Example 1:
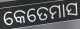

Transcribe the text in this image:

କେତେମାସ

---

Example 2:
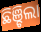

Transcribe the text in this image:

ଛିଞ୍ଚିଲା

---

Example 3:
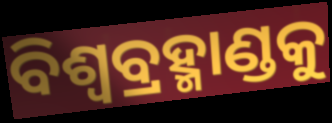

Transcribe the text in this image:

ବିଶ୍ବବ୍ରହ୍ମାଣ୍ଡକୁ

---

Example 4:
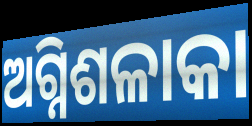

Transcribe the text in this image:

ଅଗ୍ନିଶଳାକା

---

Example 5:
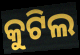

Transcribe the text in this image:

କୁଟିଲ